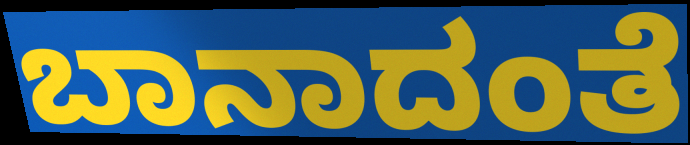
ಬಾನಾದಂತೆ